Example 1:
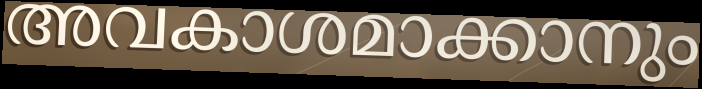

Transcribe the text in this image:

അവകാശമാക്കാനും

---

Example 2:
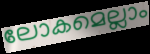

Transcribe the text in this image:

ലോകമെല്ലാം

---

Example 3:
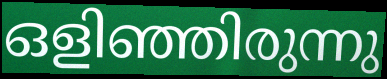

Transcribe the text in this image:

ഒളിഞ്ഞിരുന്നു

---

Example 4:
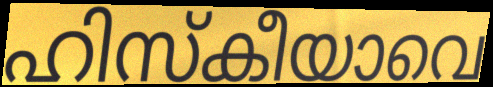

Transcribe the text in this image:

ഹിസ്കീയാവെ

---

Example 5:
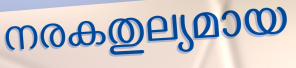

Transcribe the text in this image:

നരകതുല്യമായ